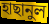
হাছানুল